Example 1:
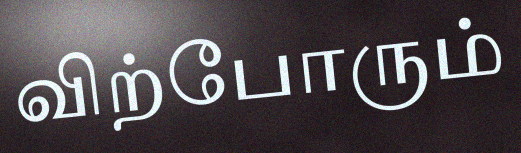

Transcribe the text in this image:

விற்போரும்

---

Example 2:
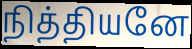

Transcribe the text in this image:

நித்தியனே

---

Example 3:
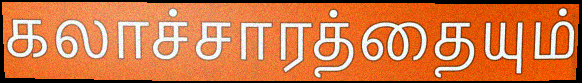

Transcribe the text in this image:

கலாச்சாரத்தையும்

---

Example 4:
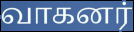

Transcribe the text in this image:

வாகனர்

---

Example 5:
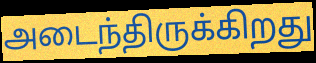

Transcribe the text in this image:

அடைந்திருக்கிறது